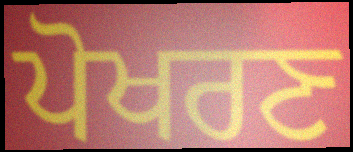
ਪੋਖਰਣ